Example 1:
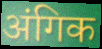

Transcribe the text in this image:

अंगिक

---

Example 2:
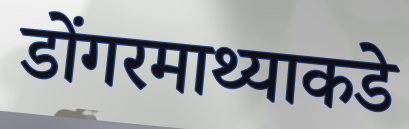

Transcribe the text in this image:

डोंगरमाथ्याकडे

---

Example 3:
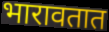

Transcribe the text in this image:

भारावतात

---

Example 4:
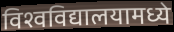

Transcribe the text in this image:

विश्वविद्यालयामध्ये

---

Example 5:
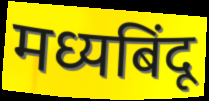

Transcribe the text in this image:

मध्यबिंदू